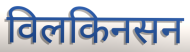
विलकिनसन